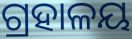
ଗ୍ରହାଳୟ